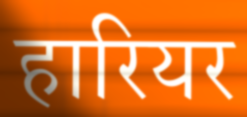
हारियर